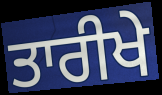
ਤਾਰੀਖੇ